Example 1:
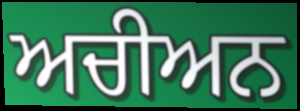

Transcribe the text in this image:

ਅਚੀਅਨ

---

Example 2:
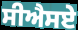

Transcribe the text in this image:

ਸੀਐਸਏ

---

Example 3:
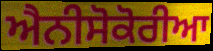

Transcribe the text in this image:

ਐਨੀਸੋਕੋਰੀਆ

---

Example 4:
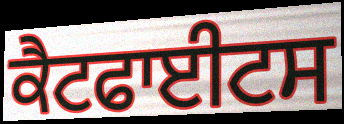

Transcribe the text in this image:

ਕੈਟਫਾਈਟਸ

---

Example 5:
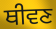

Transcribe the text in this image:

ਥੀਵਣ